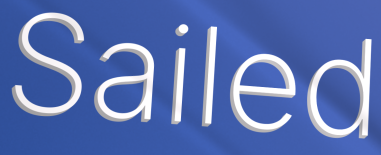
Sailed